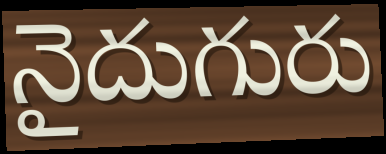
నైదుగురు